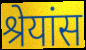
श्रेयांस